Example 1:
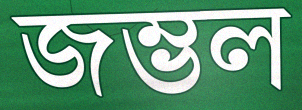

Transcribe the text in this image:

জম্ভল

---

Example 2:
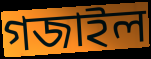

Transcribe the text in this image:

গজাইল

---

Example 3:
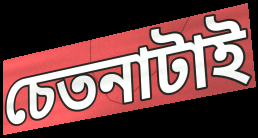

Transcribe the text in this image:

চেতনাটাই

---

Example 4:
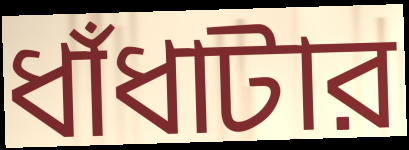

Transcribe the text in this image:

ধাঁধাটার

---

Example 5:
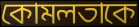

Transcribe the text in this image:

কোমলতাকে